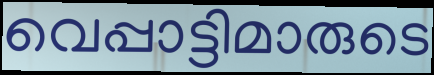
വെപ്പാട്ടിമാരുടെ